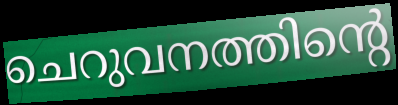
ചെറുവനത്തിന്റെ